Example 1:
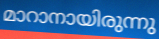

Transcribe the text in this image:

മാറാനായിരുന്നു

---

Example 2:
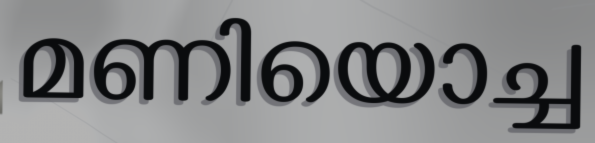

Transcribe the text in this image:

മണിയൊച്ച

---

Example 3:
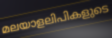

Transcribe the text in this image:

മലയാളലിപികളുടെ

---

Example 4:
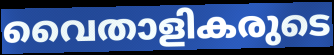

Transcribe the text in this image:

വൈതാളികരുടെ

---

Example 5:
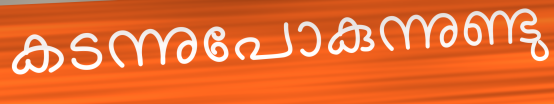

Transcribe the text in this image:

കടന്നുപോകുന്നുണ്ടു